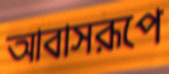
আবাসরূপে